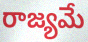
రాజ్యమే